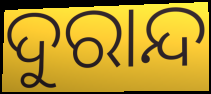
ଦୁରାନ୍ଦ